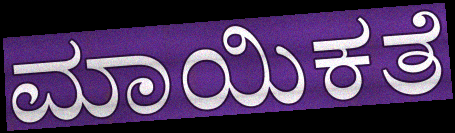
ಮಾಯಿಕತೆ